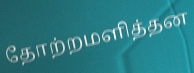
தோற்றமளித்தன